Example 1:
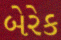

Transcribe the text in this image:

બેરેક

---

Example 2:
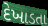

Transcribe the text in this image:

દેખાડતા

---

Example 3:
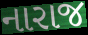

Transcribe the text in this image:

નારાજ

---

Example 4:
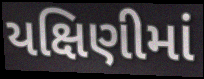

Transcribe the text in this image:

યક્ષિણીમાં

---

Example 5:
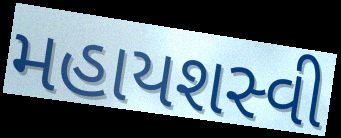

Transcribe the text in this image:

મહાયશસ્વી